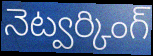
నెట్వర్కింగ్